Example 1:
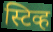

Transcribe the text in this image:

स्टिव्ह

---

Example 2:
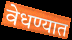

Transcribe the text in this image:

वेधण्यात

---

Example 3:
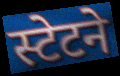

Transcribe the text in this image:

स्टेटने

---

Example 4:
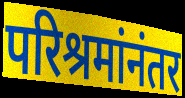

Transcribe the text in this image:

परिश्रमांनंतर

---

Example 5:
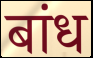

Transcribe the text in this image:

बांध